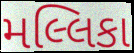
મલ્લિકા